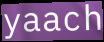
yaach